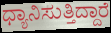
ಧ್ಯಾನಿಸುತ್ತಿದ್ದಾರೆ